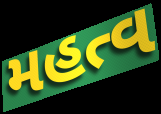
મહત્વ